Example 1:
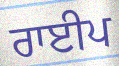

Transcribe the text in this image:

ਰਾਈਪ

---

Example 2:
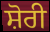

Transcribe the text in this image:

ਸ਼ੋਰੀ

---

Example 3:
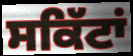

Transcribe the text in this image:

ਸਕਿੱਟਾਂ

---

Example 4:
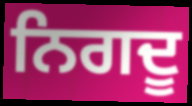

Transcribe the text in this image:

ਨਿਗਦੂ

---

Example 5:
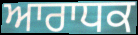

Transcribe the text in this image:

ਆਰਾਧਕ